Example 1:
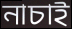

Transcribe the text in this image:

নাচাই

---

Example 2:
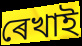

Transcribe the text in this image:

ৰেখাই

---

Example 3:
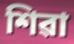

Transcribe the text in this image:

শিৱা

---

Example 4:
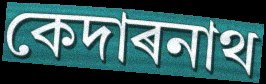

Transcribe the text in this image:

কেদাৰনাথ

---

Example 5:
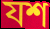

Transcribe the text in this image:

যশ